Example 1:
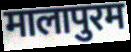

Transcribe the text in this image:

मालापुरम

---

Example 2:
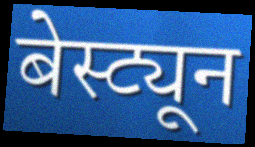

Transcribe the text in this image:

बेस्ट्यून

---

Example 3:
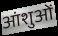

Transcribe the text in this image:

आंशुओं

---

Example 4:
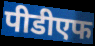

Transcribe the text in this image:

पीडीएफ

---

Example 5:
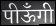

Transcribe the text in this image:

पीऊँगी